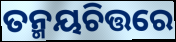
ତନ୍ମୟଚିତ୍ତରେ